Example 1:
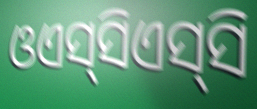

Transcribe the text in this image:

ଓଏସ୍‌ସିଏସ୍‌ସି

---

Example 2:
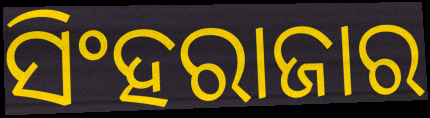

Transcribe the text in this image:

ସିଂହରାଜାର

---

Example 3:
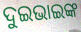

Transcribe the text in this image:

ଦୁଇଭାଇଙ୍କ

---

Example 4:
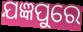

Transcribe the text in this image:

ଯଜ୍ଞପୁରେ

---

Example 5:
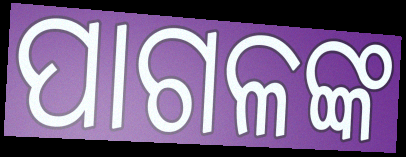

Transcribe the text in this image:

ପାଗଳଙ୍କ